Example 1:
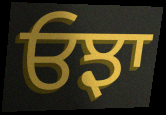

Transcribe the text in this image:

ਓਝਾ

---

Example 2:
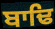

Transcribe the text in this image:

ਬਾਢਿ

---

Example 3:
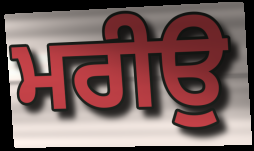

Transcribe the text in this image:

ਮਰੀਉ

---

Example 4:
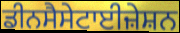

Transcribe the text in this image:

ਡੀਨਸੈਸੇਟਾਈਜ਼ੇਸ਼ਨ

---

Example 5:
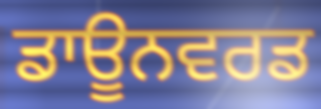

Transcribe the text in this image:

ਡਾਊਨਵਰਡ